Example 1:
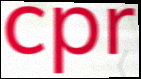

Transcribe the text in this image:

cpr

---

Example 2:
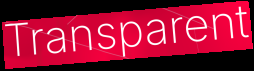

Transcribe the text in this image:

Transparent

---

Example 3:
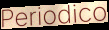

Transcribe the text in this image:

Periodico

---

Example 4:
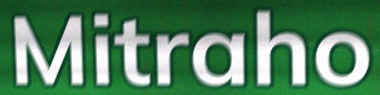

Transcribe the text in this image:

Mitraho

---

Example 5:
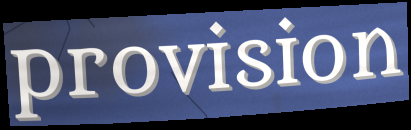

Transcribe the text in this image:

provision